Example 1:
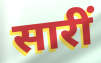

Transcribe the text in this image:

सारीं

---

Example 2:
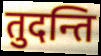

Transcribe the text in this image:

तुदन्ति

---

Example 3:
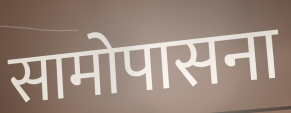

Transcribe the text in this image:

सामोपासना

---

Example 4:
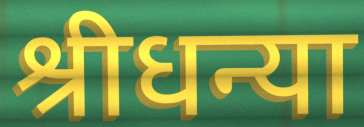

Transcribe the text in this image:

श्रीधन्या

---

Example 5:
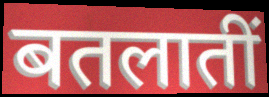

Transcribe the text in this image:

बतलातीं